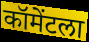
कॉमेंटला